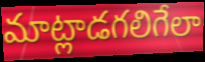
మాట్లాడగలిగేలా